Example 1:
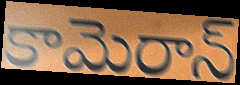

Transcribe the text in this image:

కామెరాన్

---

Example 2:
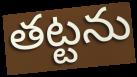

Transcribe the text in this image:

తట్టను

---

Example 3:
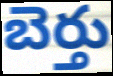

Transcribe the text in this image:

బెర్తు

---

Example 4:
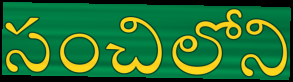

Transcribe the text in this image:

సంచిలోని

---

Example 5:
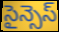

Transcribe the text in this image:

సైన్సెస్